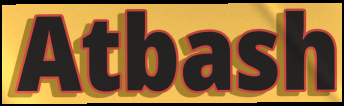
Atbash